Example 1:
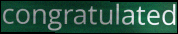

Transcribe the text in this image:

congratulated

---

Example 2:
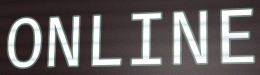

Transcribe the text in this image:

ONLINE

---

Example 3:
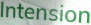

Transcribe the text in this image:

Intension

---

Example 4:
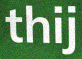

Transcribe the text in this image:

thij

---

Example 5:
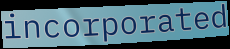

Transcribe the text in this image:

incorporated